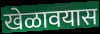
खेळावयास